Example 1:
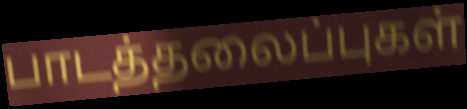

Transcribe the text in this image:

பாடத்தலைப்புகள்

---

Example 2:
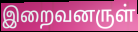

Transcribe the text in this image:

இறைவனருள்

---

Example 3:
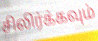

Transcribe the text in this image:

சிலிர்க்கவும்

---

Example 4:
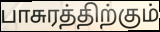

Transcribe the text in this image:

பாசுரத்திற்கும்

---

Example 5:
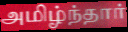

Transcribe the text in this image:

அமிழ்ந்தார்